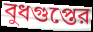
বুধগুপ্তের